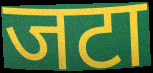
जटा